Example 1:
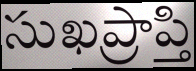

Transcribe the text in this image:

సుఖప్రాప్తి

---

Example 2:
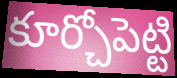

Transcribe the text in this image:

కూర్చోపెట్టి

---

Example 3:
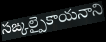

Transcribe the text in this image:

సఙ్కల్పైకాయనాని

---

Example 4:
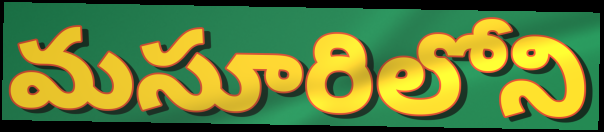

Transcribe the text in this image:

మసూరిలోని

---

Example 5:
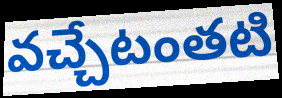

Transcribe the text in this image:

వచ్చేటంతటి